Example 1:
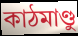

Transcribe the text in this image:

কাঠমাণ্ডু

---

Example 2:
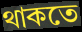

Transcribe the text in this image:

থাকতে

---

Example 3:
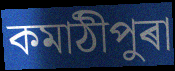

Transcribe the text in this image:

কমাঠীপুৰা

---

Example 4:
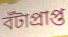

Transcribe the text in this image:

বঁটাপ্ৰাপ্ত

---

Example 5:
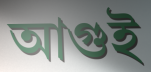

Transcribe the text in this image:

আগুই